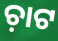
ଚ଼ାଟ